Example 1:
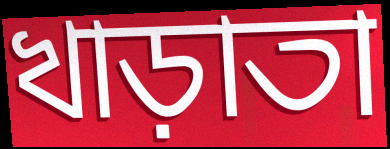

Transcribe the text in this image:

খাড়াতা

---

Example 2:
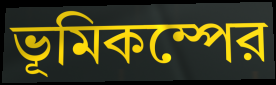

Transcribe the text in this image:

ভূমিকম্পের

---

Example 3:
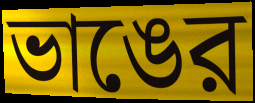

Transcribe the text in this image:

ভাঙের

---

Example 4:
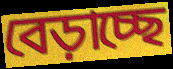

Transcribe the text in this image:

বেড়াচ্ছে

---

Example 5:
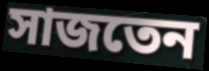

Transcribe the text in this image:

সাজতেন